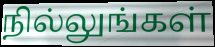
நில்லுங்கள்